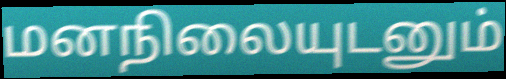
மனநிலையுடனும்